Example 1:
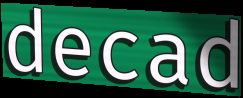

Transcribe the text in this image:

decad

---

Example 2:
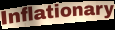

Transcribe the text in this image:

Inflationary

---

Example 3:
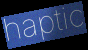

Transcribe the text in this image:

haptic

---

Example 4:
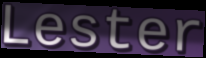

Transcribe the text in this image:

Lester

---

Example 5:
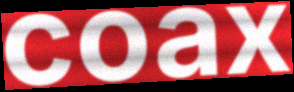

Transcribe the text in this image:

coax